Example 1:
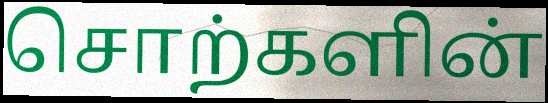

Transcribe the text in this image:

சொற்களின்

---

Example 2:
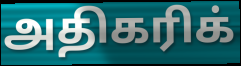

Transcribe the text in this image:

அதிகரிக்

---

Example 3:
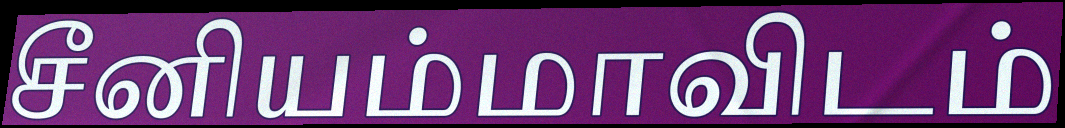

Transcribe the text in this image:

சீனியம்மாவிடம்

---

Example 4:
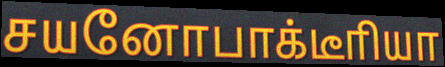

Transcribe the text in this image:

சயனோபாக்டீரியா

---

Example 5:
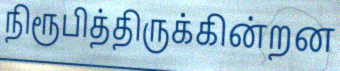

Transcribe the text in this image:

நிரூபித்திருக்கின்றன